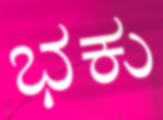
ಭಕು